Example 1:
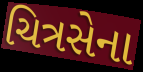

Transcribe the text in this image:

ચિત્રસેના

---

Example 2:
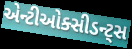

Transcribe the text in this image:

એન્ટીઓક્સીડન્ટ્સ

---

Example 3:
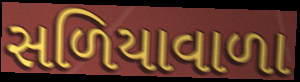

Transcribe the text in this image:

સળિયાવાળા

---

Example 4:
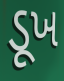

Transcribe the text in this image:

ડૂખ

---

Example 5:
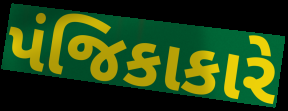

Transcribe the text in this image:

પંજિકાકારે